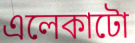
এলেকাটো